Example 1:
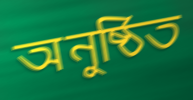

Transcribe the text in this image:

অনুষ্ঠিত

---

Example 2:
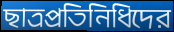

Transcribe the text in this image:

ছাত্রপ্রতিনিধিদের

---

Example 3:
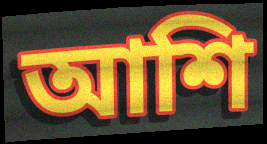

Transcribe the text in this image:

আশি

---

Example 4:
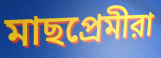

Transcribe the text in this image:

মাছপ্রেমীরা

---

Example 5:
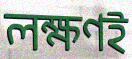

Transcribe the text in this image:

লক্ষণই